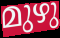
മുഴു